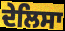
ਦੇਲਿਸਾ